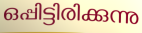
ഒപ്പിട്ടിരിക്കുന്നു